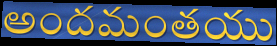
అందమంతయు